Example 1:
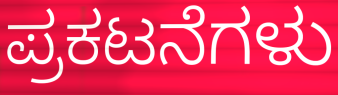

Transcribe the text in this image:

ಪ್ರಕಟನೆಗಳು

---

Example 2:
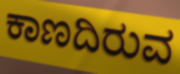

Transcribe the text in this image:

ಕಾಣದಿರುವ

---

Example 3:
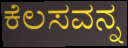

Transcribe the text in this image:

ಕೆಲಸವನ್ನ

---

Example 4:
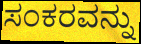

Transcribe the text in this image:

ಸಂಕರವನ್ನು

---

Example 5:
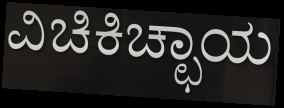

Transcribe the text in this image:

ವಿಚಿಕಿಚ್ಛಾಯ